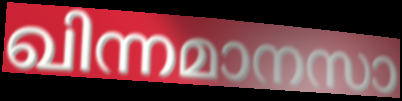
ഖിന്നമാനസാ